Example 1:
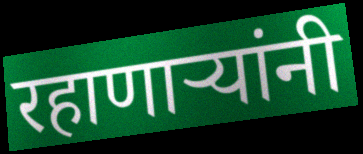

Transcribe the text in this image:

रहाणार्‍यांनी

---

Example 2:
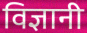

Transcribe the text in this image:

विज्ञानी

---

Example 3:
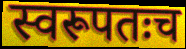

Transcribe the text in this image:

स्वरूपतःच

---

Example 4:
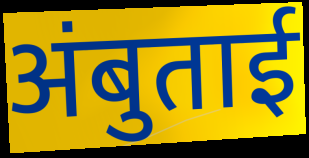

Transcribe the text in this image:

अंबुताई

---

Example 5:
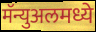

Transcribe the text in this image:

मॅन्युअलमध्ये